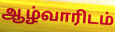
ஆழ்வாரிடம்